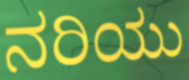
ನರಿಯು